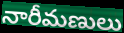
నారీమణులు